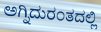
ಅಗ್ನಿದುರಂತದಲ್ಲಿ